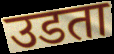
उडता